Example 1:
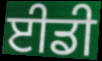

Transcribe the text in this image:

ਈਡੀ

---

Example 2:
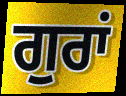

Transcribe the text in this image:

ਗੁਰਾਂ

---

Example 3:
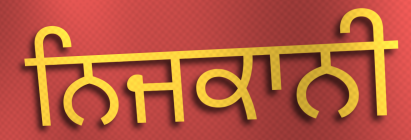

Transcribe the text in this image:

ਨਿਜਕਾਨੀ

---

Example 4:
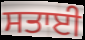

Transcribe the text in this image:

ਸਤਾਈ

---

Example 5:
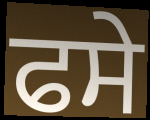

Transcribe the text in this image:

ਫਸੇ